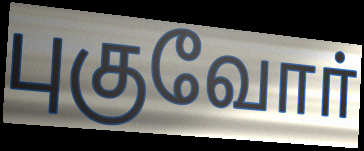
புகுவோர்